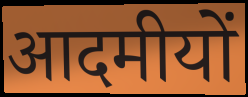
आदमीयों